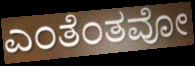
ಎಂತೆಂತವೋ